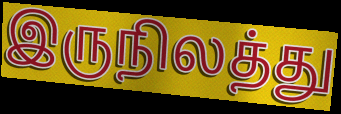
இருநிலத்து